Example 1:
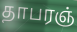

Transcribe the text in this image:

தாபரஞ்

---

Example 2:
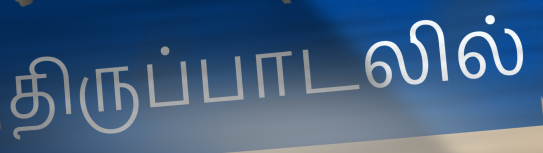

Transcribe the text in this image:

திருப்பாடலில்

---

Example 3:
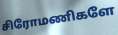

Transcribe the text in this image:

சிரோமணிகளே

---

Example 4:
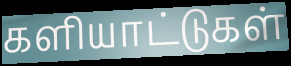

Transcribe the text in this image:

களியாட்டுகள்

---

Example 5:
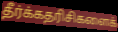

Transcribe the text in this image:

தீர்க்கதரிசிகளைக்